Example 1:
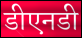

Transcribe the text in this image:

डीएनडी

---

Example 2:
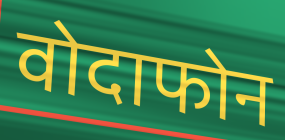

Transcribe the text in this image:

वोदाफोन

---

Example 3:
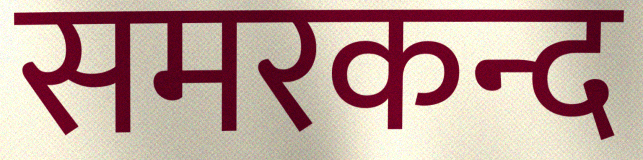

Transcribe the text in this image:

समरकन्द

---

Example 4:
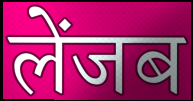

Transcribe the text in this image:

लेंजब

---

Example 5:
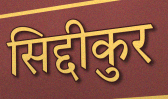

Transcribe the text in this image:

सिद्दीकुर